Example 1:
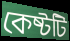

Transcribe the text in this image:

কেষ্টটি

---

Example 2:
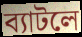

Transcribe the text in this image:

ব্যাটলে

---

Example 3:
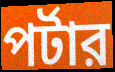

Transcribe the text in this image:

পর্টার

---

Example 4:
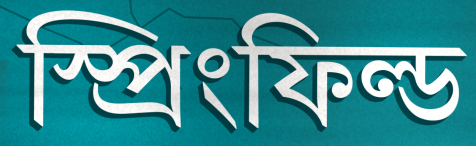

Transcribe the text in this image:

স্প্রিংফিল্ড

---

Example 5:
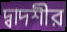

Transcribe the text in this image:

দ্বাদশীর